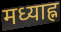
मध्याह्न